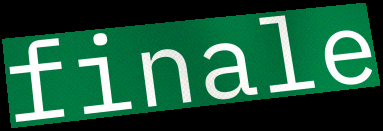
finale